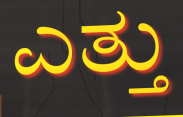
ಎತ್ತು